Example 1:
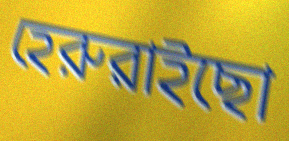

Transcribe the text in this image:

হেৰুৱাইছো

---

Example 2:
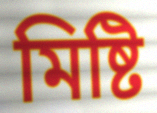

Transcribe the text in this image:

মিষ্টি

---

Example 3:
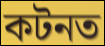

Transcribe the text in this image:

কটনত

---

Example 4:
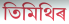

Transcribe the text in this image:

তিমিথিৰ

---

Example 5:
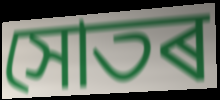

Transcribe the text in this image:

সোতৰ